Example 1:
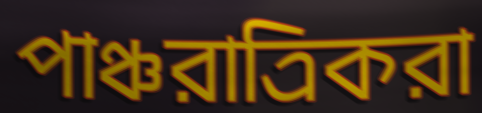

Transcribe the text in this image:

পাঞ্চরাত্রিকরা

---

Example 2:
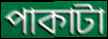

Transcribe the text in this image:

পাকাটা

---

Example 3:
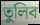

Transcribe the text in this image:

তুলিব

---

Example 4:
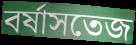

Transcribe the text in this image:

বর্ষাসতেজ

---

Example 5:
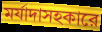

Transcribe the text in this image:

মর্যাদাসহকারে